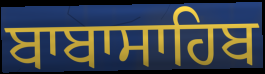
ਬਾਬਾਸਾਹਿਬ